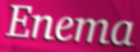
Enema